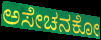
ಅಸೇಚನಕೋ